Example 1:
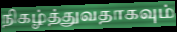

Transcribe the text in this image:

நிகழ்த்துவதாகவும்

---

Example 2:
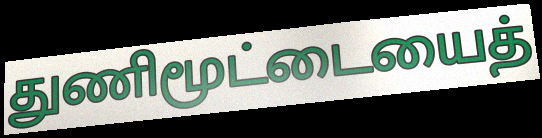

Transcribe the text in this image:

துணிமூட்டையைத்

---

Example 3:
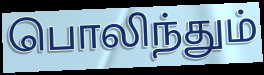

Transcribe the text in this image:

பொலிந்தும்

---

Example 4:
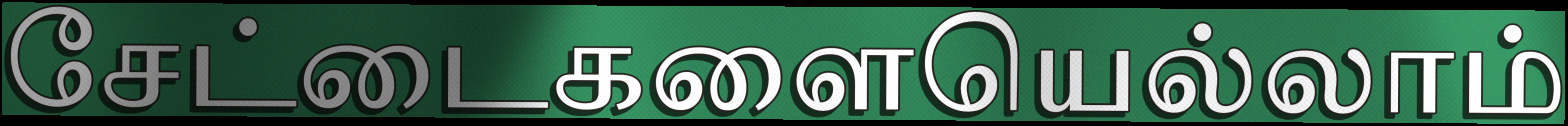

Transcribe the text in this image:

சேட்டைகளையெல்லாம்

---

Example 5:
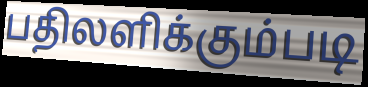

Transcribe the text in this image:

பதிலளிக்கும்படி